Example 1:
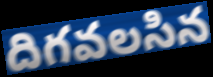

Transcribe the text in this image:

దిగవలసిన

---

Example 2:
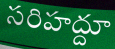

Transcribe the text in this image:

సరిహద్దూ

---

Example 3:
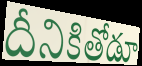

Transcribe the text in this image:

దీనికితోడూ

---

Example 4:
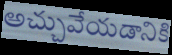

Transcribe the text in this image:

అచ్చువేయడానికి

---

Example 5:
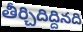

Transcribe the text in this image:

తీర్చిదిద్దినది